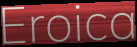
Eroica